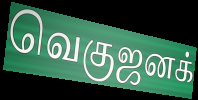
வெகுஜனக்